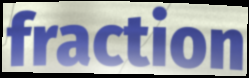
fraction